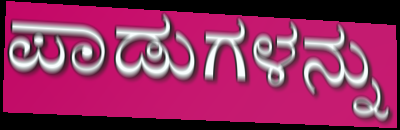
ಪಾಡುಗಳನ್ನು